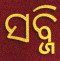
ସବ୍ଜି